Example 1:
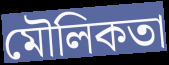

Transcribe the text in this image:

মৌলিকতা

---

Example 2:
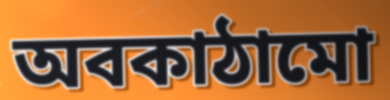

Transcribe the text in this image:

অবকাঠামো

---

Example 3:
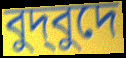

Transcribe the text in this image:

বুদ্‌বুদে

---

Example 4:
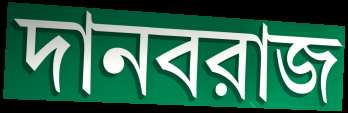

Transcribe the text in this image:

দানবরাজ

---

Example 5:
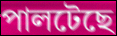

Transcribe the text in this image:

পালটেছে